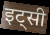
इट्सी